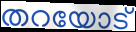
തറയോട്